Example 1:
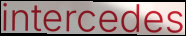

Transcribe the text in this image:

intercedes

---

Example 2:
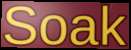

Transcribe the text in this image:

Soak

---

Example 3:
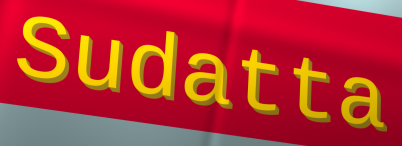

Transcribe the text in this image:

Sudatta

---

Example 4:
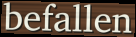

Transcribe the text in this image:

befallen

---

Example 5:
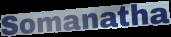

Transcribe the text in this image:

Somanatha